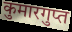
कुमारगुप्त